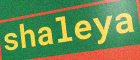
shaleya